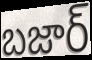
బజార్